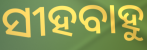
ସୀହବାହୁ